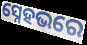
ସ୍ନେହଭରେ